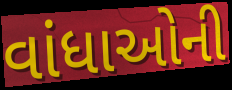
વાંધાઓની